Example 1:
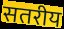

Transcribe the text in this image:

सतरीय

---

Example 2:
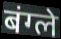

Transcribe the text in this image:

बंग्ले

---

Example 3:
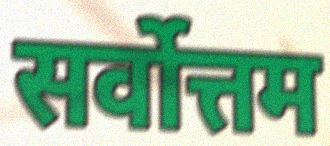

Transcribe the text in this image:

सर्वोत्तम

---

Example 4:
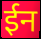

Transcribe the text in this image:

ईन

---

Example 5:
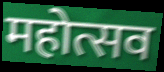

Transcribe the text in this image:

महोत्सव